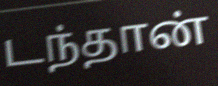
டந்தான்